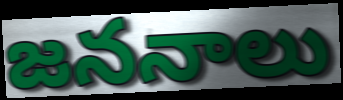
జననాలు